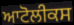
ਆਟੋਲੀਕਸ